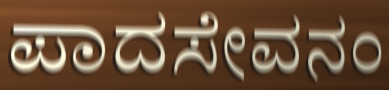
ಪಾದಸೇವನಂ